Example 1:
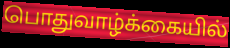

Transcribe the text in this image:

பொதுவாழ்க்கையில்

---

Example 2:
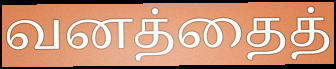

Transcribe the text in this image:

வனத்தைத்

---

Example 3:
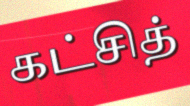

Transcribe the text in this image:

கட்சித்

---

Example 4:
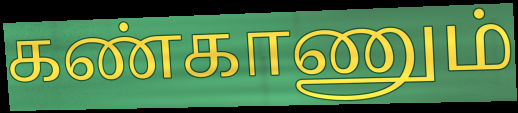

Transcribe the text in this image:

கண்காணும்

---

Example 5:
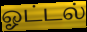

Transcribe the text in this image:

ஓட்டல்